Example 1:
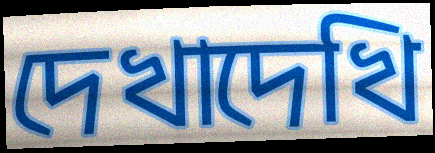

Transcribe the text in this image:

দেখাদেখি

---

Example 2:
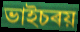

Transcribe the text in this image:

ভাইচৰয়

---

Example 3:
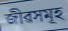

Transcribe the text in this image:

জীৱসমূহ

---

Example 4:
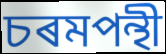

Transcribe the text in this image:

চৰমপন্থী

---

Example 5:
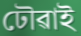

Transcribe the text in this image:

ঢৌৱাই